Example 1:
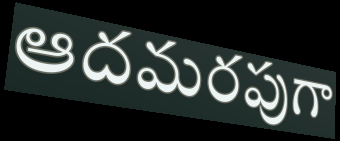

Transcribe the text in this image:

ఆదమరపుగా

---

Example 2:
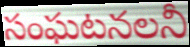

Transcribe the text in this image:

సంఘటనలనీ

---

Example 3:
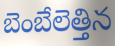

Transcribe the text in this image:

బెంబేలెత్తిన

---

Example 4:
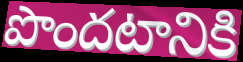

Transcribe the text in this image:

పొందటానికి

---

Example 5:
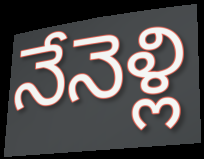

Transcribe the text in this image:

నేనెళ్లి